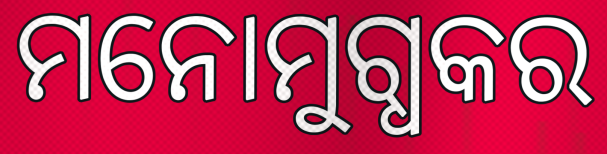
ମନୋମୁଗ୍ଧକର